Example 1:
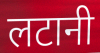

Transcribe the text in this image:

लटानी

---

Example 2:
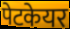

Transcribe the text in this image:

पेटकेयर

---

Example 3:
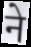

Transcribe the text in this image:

ने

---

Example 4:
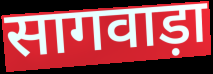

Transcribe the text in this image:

सागवाड़ा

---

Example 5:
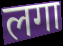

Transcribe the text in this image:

लगा